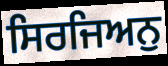
ਸਿਰਜਿਅਨੁ